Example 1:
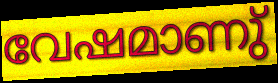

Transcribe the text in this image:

വേഷമാണു്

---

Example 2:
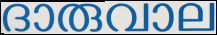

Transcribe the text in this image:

ദാരുവാല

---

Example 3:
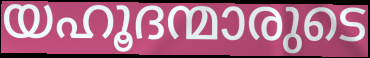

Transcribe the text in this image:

യഹൂദന്മാരുടെ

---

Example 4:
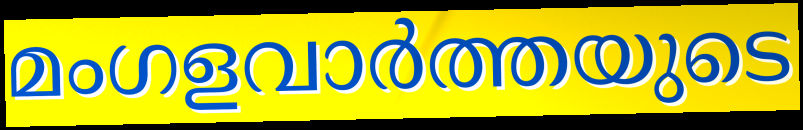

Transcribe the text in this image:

മംഗളവാർത്തയുടെ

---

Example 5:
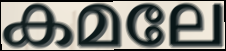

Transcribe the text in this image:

കമലേ